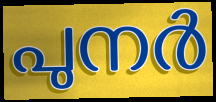
പുനർ